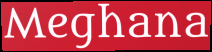
Meghana